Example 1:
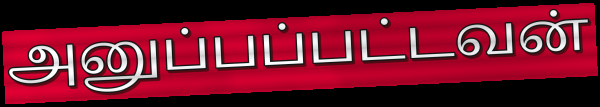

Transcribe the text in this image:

அனுப்பப்பட்டவன்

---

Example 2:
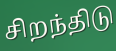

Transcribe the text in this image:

சிறந்திடு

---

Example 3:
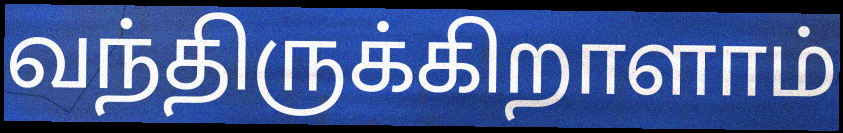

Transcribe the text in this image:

வந்திருக்கிறாளாம்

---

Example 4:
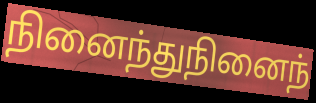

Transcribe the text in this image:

நினைந்துநினைந்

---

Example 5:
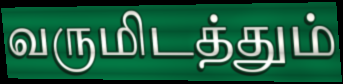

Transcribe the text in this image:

வருமிடத்தும்